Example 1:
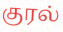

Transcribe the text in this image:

குரல்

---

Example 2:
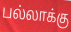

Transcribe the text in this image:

பல்லாக்கு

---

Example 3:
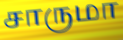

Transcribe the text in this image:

சாருமா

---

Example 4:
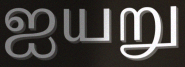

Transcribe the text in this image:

ஐயறு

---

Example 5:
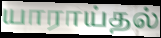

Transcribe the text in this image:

யாராய்தல்